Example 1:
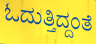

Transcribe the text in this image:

ಓದುತ್ತಿದ್ದಂತೆ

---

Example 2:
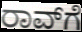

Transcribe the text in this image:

ರಾವ್‌ಗೆ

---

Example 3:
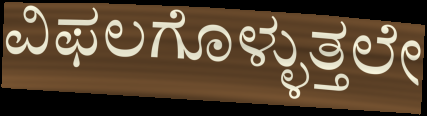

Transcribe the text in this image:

ವಿಫಲಗೊಳ್ಳುತ್ತಲೇ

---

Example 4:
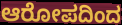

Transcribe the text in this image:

ಆರೋಪದಿಂದ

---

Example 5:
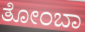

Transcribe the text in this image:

ತೋಂಬಾ